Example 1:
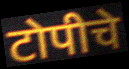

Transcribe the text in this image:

टोपीचे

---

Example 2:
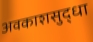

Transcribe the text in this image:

अवकाशसुद्धा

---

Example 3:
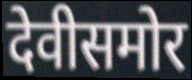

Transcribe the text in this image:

देवीसमोर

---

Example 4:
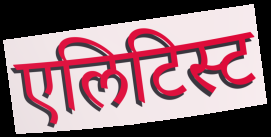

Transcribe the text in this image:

एलिटिस्ट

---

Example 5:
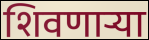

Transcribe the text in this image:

शिवणाऱ्या